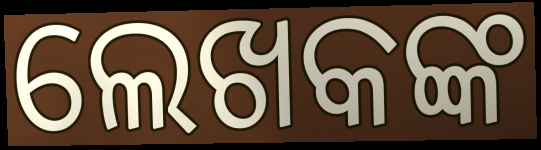
ଲେଖକଙ୍କ